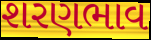
શરણભાવ